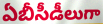
ఏబీసీడీలుగా